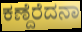
ಕಣ್ದೆರೆದನಾ